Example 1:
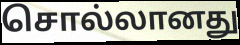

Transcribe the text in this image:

சொல்லானது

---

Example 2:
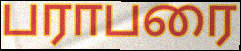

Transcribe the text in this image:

பராபரை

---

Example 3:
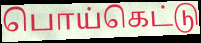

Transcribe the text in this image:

பொய்கெட்டு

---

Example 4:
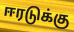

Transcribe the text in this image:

ஈரடுக்கு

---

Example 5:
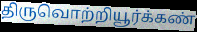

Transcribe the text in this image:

திருவொற்றியூர்க்கண்